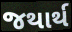
જથાર્થ